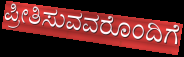
ಪ್ರೀತಿಸುವವರೊಂದಿಗೆ